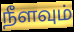
நீளவும்